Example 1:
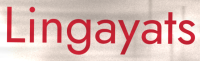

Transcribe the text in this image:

Lingayats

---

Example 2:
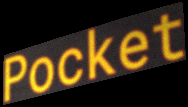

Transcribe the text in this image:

Pocket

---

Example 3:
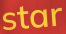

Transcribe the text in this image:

star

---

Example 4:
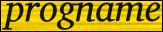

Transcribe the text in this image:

progname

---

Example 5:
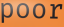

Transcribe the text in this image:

poor